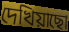
দেখিয়াছো